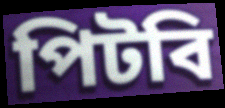
পিটবি